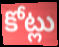
కోట్లు